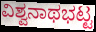
ವಿಶ್ವನಾಥಭಟ್ಟ